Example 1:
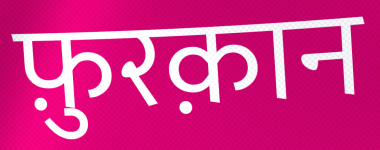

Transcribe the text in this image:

फ़ुरक़ान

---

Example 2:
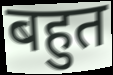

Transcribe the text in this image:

बहुत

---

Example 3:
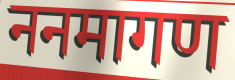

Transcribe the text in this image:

ननमागण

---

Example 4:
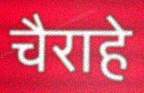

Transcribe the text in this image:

चैराहे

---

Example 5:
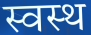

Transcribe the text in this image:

स्वस्थ